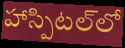
హాస్పిటల్‌లో